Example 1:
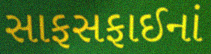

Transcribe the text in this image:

સાફસફાઈનાં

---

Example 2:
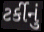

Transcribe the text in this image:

ટર્કીનું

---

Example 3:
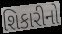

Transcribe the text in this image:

શિકારીનો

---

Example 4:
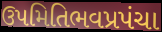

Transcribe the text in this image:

ઉપમિતિભવપ્રપંચા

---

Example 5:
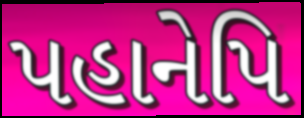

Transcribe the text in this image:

પહાનેપિ